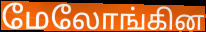
மேலோங்கின